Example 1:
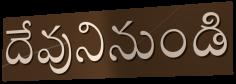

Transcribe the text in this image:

దేవునినుండి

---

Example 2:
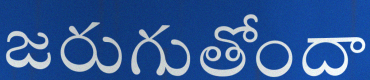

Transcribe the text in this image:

జరుగుతోందా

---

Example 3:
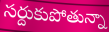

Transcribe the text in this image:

సర్దుకుపోతున్నా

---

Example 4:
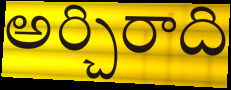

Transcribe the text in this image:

అర్చిరాది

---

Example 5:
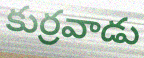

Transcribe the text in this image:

కుర్రవాడు